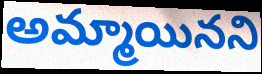
అమ్మాయినని